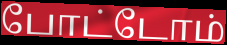
போட்டோம்